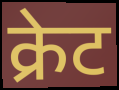
क्रेट